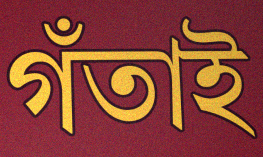
গঁতাই